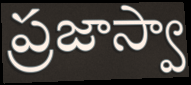
ప్రజాస్వా